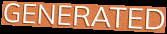
GENERATED